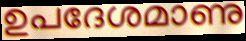
ഉപദേശമാണു